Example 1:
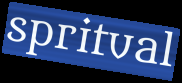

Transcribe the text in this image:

spritual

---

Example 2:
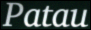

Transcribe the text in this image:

Patau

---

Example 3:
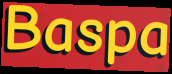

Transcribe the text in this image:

Baspa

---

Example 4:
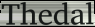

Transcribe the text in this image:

Thedal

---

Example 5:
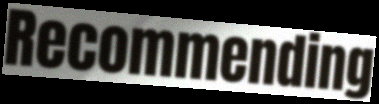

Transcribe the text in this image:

Recommending